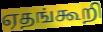
ஏதங்கூறி